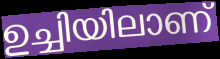
ഉച്ചിയിലാണ്